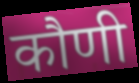
कौणी